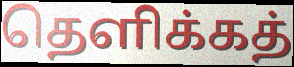
தெளிக்கத்